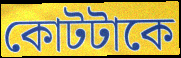
কোটটাকে